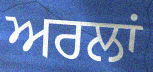
ਅਰਲਾਂ